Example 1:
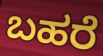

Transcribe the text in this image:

ಬಹರೆ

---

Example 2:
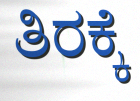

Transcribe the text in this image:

ತಿರಕ್ಕೆ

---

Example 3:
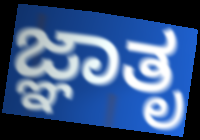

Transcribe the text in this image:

ಜ್ಞಾತೃ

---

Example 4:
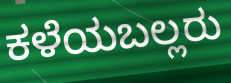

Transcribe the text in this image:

ಕಳೆಯಬಲ್ಲರು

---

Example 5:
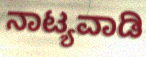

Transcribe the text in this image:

ನಾಟ್ಯವಾಡಿ